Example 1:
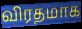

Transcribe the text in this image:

விரதமாக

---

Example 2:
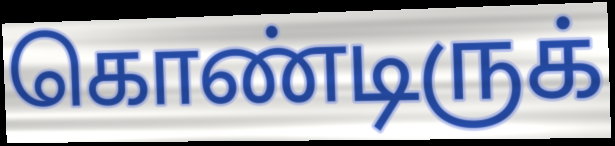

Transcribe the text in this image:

கொண்டிருக்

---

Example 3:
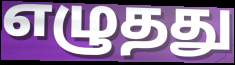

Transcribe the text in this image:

எழுதது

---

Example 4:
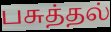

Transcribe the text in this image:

பசுத்தல்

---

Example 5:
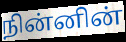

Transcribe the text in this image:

நின்னின்